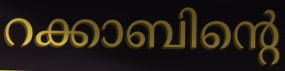
റക്കാബിന്റെ